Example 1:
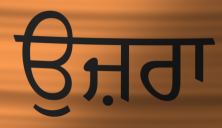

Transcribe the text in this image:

ਉਜ਼ਰਾ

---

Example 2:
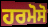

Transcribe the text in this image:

ਹਰਮੋਸੋ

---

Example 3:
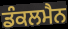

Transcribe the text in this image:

ਡੰਕਲਮੈਨ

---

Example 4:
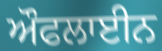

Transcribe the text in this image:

ਔਫਲਾਈਨ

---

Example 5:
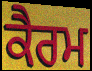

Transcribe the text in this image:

ਕੈਰਮ